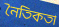
নৈতিকতা